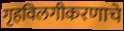
गृहविलगीकरणाचे